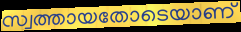
സ്വത്തായതോടെയാണ്